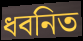
ধবনিত